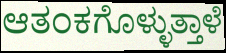
ಆತಂಕಗೊಳ್ಳುತ್ತಾಳೆ